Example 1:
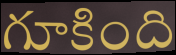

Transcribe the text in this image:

గూకింది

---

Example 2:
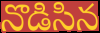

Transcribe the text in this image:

నొడిసిన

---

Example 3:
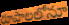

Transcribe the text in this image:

రూపాలలోనూ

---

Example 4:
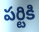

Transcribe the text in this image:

పర్టికి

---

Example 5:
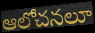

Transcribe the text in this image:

ఆలోచనలూ